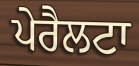
ਪੇਰੈਲਟਾ